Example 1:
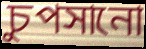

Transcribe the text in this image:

চুপসানো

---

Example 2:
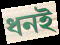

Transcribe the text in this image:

ধনই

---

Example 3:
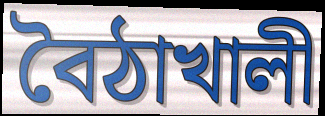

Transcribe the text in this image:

বৈঠাখালী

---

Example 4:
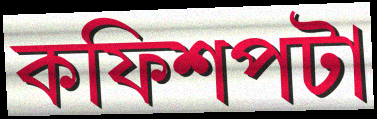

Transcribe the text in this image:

কফিশপটা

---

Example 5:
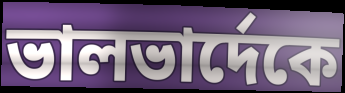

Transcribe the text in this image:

ভালভার্দেকে